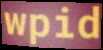
wpid